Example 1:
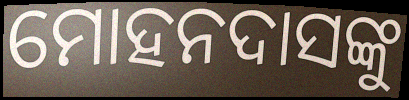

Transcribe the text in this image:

ମୋହନଦାସଙ୍କୁ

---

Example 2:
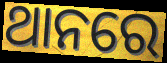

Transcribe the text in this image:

ଥାନରେ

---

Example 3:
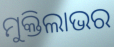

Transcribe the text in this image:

ମୁକ୍ତିଲାଭର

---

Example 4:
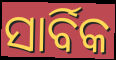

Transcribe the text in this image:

ସାର୍ବିକ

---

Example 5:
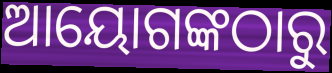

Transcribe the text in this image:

ଆୟୋଗଙ୍କଠାରୁ